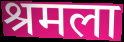
श्रमला